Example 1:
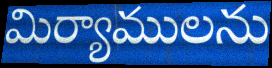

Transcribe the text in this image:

మిర్యాములను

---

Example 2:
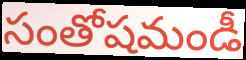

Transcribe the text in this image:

సంతోషమండీ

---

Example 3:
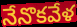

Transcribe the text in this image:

నేనొకవేళ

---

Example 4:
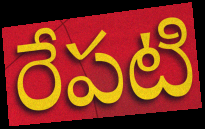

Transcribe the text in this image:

రేపటి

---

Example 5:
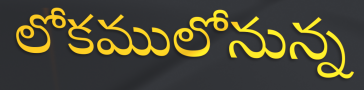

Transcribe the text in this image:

లోకములోనున్న